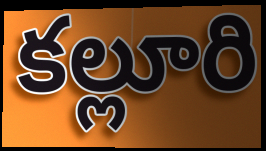
కల్లూరి